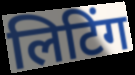
लिटिंग